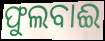
ଫୁଲବାଈ